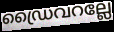
ഡ്രൈവറല്ലേ